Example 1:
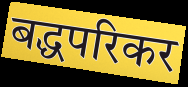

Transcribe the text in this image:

बद्धपरिकर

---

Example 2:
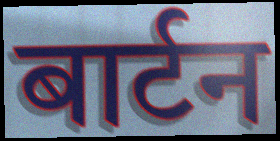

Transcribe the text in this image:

बार्टन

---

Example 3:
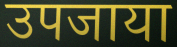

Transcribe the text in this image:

उपजाया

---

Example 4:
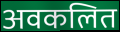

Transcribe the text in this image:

अवकलित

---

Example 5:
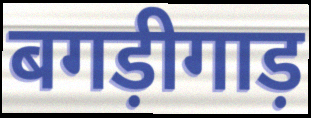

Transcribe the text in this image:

बगड़ीगाड़